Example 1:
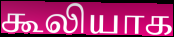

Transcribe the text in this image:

கூலியாக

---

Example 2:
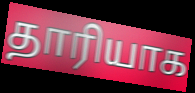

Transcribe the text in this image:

தாரியாக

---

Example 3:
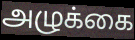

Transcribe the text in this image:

அழுக்கை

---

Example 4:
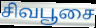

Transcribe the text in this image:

சிவபூசை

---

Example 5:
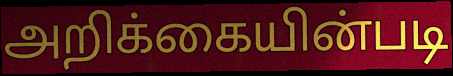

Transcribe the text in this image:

அறிக்கையின்படி